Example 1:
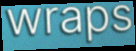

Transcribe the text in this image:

wraps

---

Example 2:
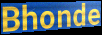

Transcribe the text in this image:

Bhonde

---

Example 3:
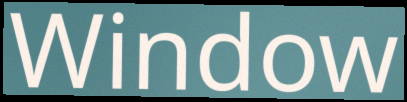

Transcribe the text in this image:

Window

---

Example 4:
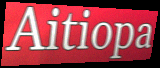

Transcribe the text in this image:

Aitiopa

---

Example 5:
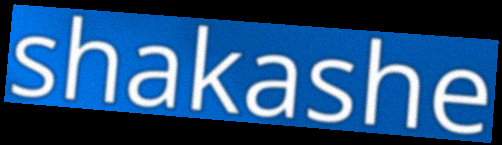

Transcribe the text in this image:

shakashe